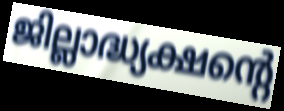
ജില്ലാദ്ധ്യക്ഷന്റെ